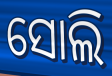
ସୋଲି